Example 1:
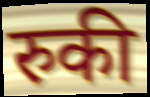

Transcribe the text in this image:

रुकी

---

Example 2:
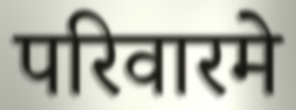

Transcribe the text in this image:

परिवारमे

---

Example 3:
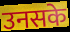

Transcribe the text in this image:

उनसके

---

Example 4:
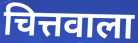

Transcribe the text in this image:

चित्तवाला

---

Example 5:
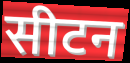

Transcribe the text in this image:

सीटन